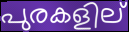
പുരകളില്